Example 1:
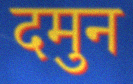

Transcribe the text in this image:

दमुन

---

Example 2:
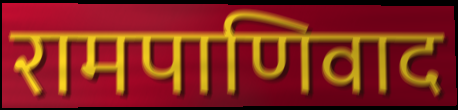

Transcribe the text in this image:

रामपाणिवाद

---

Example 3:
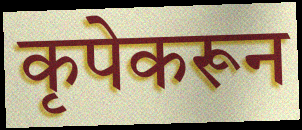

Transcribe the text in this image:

कृपेकरून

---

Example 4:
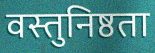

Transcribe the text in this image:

वस्तुनिष्ठता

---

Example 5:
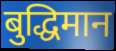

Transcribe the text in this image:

बुद्धिमान